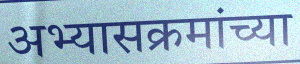
अभ्यासक्रमांच्या